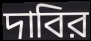
দাবির